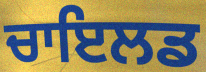
ਚਾਇਲਡ